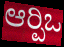
ಆರ್‍ಪಿಒ